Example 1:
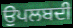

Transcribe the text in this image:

ਉਪਲਬਦੀ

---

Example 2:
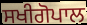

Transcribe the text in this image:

ਸਖੀਗੋਪਾਲ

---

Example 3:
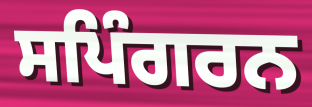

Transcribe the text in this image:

ਸਪਿੰਗਰਨ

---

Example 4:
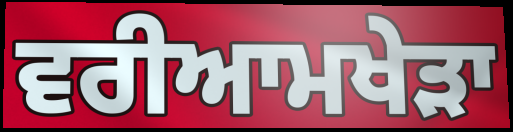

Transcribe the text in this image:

ਵਰੀਆਮਖੇੜਾ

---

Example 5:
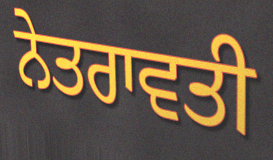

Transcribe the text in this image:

ਨੇਤਰਾਵਤੀ